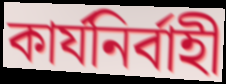
কার্যনির্বাহী